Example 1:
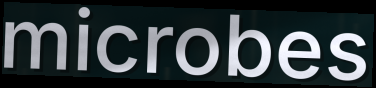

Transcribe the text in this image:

microbes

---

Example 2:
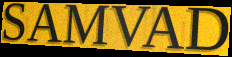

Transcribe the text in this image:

SAMVAD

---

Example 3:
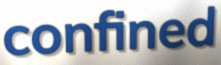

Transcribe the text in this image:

confined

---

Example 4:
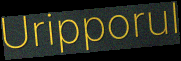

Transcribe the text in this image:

Uripporul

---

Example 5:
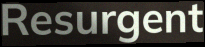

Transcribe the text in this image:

Resurgent